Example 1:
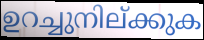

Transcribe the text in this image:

ഉറച്ചുനില്ക്കുക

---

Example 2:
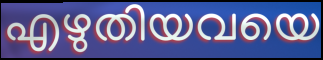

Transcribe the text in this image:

എഴുതിയവയെ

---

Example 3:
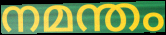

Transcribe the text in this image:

നമന്തം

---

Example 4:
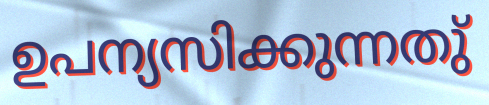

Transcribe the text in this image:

ഉപന്യസിക്കുന്നതു്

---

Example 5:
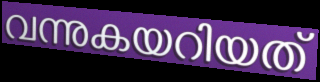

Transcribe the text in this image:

വന്നുകയറിയത്